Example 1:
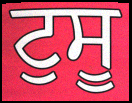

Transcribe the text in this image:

ਟੁਸੂ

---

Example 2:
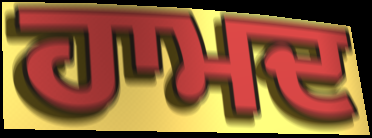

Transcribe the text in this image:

ਹਾਮਦ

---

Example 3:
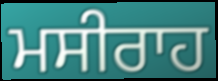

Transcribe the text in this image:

ਮਸੀਰਾਹ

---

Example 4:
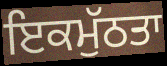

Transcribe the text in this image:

ਇਕਮੁੱਠਤਾ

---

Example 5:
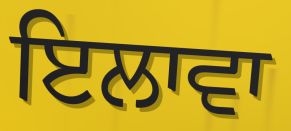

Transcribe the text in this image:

ਇਲਾਵਾ